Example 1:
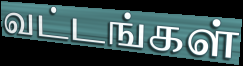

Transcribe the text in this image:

வட்டங்கள்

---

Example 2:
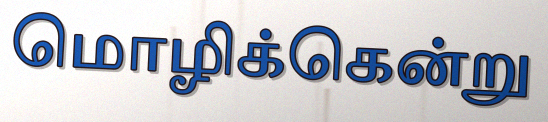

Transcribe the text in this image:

மொழிக்கென்று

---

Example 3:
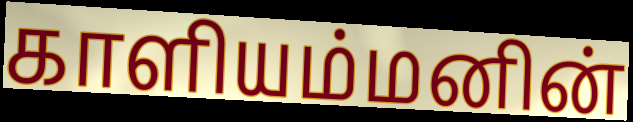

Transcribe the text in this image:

காளியம்மனின்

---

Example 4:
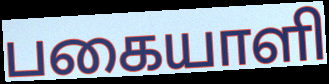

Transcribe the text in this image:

பகையாளி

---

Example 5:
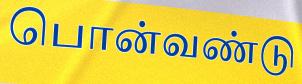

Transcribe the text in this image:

பொன்வண்டு